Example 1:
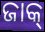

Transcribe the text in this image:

ଜାକ୍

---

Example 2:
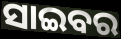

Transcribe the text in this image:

ସାଇବର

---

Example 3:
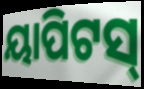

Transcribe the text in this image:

ୟାପିଟସ୍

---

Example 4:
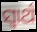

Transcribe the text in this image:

ସ୍ୱାର୍ଥ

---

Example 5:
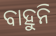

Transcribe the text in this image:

ବାହୁନି